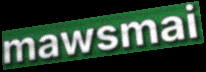
mawsmai